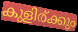
കുളിര്ക്കും